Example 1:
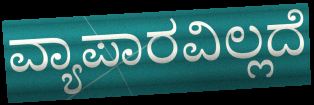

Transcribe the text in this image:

ವ್ಯಾಪಾರವಿಲ್ಲದೆ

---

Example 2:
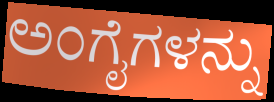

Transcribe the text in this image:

ಅಂಗೈಗಳನ್ನು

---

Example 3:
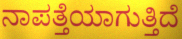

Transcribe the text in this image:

ನಾಪತ್ತೆಯಾಗುತ್ತಿದೆ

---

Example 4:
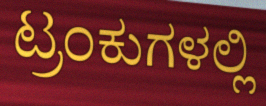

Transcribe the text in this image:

ಟ್ರಂಕುಗಳಲ್ಲಿ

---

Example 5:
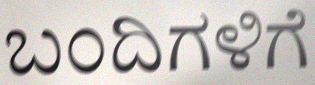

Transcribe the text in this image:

ಬಂದಿಗಳಿಗೆ